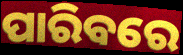
ପାରିବରେ